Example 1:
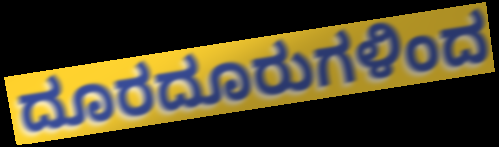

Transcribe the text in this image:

ದೂರದೂರುಗಳಿಂದ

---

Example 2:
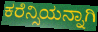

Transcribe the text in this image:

ಕರೆನ್ಸಿಯನ್ನಾಗಿ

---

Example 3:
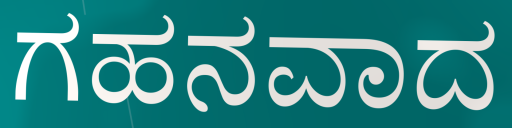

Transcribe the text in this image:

ಗಹನವಾದ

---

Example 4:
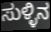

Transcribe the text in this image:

ಸುಳ್ಳಿನ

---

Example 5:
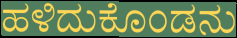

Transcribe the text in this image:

ಹಳಿದುಕೊಂಡನು